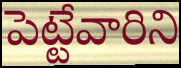
పెట్టేవారిని